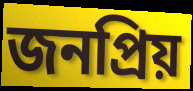
জনপ্রিয়